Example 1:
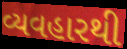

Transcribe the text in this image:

વ્યવહારથી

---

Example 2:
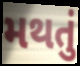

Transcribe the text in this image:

મથતું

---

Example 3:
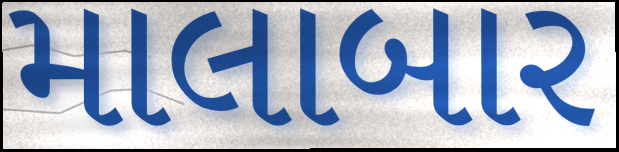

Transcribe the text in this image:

માલાબાર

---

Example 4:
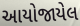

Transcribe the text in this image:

આયોજાયેલ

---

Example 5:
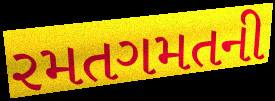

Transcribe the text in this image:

રમતગમતની